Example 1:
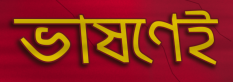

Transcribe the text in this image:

ভাষণেই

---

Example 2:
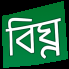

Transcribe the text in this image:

বিঘ্ন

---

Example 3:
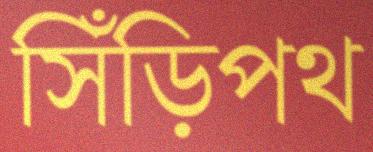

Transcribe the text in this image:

সিঁড়িপথ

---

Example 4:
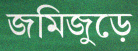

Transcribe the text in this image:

জমিজুড়ে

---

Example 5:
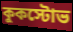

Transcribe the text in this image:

কুকস্টোভ